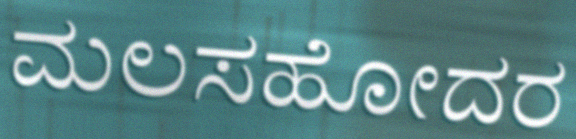
ಮಲಸಹೋದರ